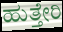
ಹುತ್ತೇರಿ